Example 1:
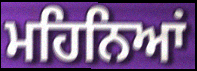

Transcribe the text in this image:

ਮਹਿਨਿਆਂ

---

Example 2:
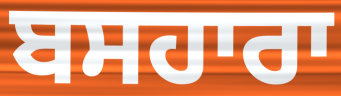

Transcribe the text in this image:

ਬਸਹਾਰਾ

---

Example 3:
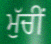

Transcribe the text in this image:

ਮੁੱਚੀਂ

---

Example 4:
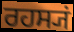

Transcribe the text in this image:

ਰਹਸ੍ਯਂ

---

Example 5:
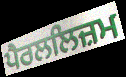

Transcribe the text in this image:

ਪੈਰਲਲਿਜ਼ਮ